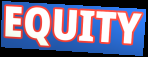
EQUITY